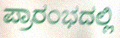
ಪ್ರಾರಂಭದಲ್ಲಿ